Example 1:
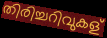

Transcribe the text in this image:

തിരിച്ചറിവുകള്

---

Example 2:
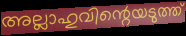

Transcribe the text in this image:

അല്ലാഹുവിന്റെയടുത്ത്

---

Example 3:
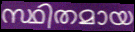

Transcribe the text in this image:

സ്ഥിതമായ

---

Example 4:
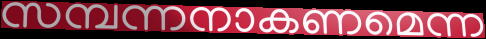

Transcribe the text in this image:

സമ്പന്നനാകണമെന്ന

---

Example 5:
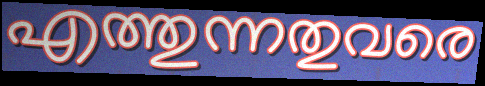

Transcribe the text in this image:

എത്തുന്നതുവരെ